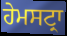
ਹੇਮਸਟ੍ਰਾ